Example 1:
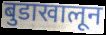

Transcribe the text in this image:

बुडाखालून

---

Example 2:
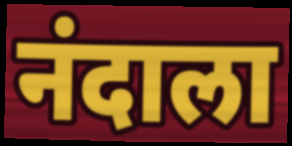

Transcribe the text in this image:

नंदाला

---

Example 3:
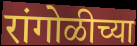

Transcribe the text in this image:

रांगोळीच्या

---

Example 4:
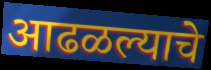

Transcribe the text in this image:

आढळल्याचे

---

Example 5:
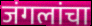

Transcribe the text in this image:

जंगलांचा